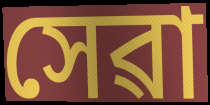
সেৱা